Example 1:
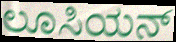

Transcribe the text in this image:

ಲೂಸಿಯನ್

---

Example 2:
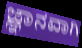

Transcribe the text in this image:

ಜ್ಞಾನವಾಗಿ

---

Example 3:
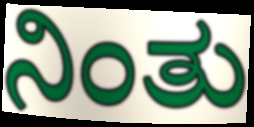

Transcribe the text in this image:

ನಿಂತು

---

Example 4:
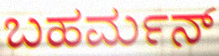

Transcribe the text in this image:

ಬಹರ್ಮನ್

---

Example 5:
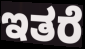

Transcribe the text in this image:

ಇತರೆ